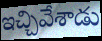
ఇచ్చివేశాడు